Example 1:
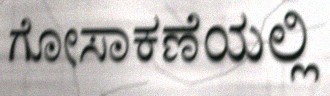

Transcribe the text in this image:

ಗೋಸಾಕಣೆಯಲ್ಲಿ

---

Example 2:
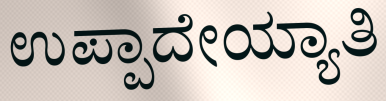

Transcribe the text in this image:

ಉಪ್ಪಾದೇಯ್ಯಾತಿ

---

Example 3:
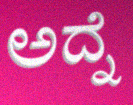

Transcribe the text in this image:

ಅದ್ನೆ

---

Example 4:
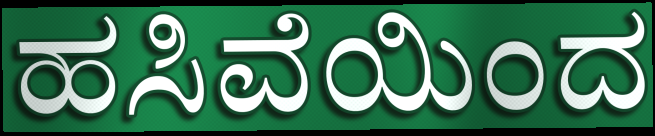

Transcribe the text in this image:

ಹಸಿವೆಯಿಂದ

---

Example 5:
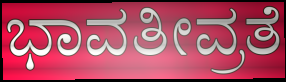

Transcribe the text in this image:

ಭಾವತೀವ್ರತೆ